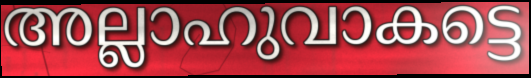
അല്ലാഹുവാകട്ടെ